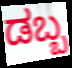
ಡಬ್ಬ